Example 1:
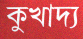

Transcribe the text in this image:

কুখাদ্য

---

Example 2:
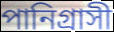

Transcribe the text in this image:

পানিগ্রাসী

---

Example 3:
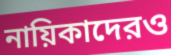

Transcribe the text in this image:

নায়িকাদেরও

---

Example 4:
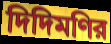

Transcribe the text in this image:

দিদিমণির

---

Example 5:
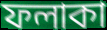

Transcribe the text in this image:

ফলাকা